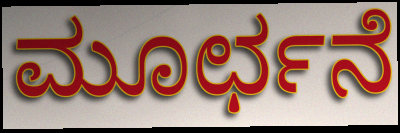
ಮೂರ್ಛನೆ